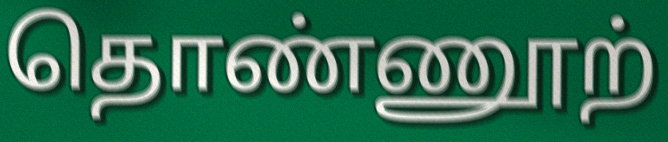
தொண்ணூற்